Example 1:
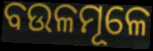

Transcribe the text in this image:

ବଉଳମୂଳେ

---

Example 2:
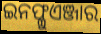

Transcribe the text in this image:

ଇନଫ୍ଳୁଏଞ୍ଜାର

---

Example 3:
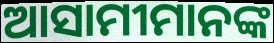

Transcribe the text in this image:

ଆସାମୀମାନଙ୍କ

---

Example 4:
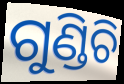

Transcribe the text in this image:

ଗୁଣ୍ଡିଚି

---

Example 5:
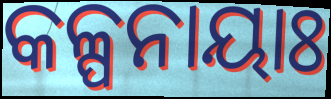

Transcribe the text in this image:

କଳ୍ପନାୟାଃ